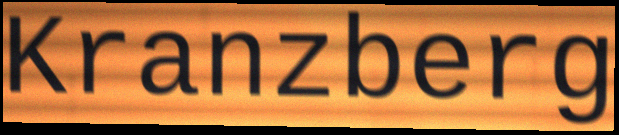
Kranzberg